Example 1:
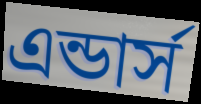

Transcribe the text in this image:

এন্ডার্স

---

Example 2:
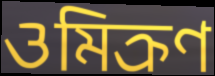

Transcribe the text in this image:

ওমিক্রণ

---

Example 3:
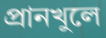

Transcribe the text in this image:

প্রানখুলে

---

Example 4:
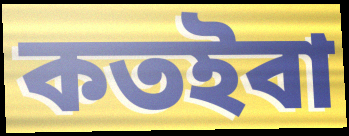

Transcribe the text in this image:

কতইবা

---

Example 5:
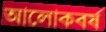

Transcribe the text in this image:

আলোকবর্ষ